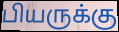
பியருக்கு